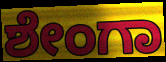
ಶೇಂಗಾ